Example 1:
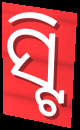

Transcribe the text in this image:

ସ୍ଟି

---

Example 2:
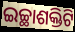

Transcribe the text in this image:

ଇଚ୍ଛାଶକ୍ତିଟି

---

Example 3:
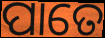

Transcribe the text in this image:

ପାତେ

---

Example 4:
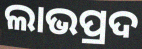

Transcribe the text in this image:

ଲାଭପ୍ରଦ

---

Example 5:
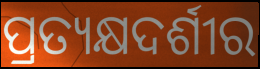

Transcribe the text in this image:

ପ୍ରତ୍ୟକ୍ଷଦର୍ଶୀର